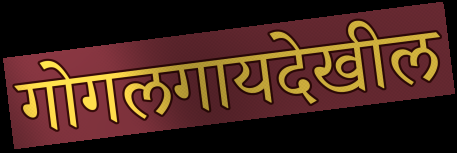
गोगलगायदेखील